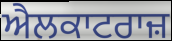
ਐਲਕਾਟਰਾਜ਼